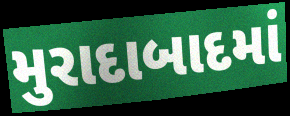
મુરાદાબાદમાં